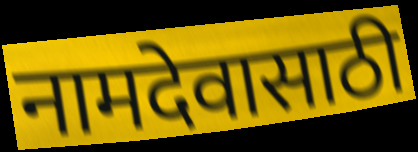
नामदेवासाठी